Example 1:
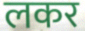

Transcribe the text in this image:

लकर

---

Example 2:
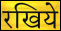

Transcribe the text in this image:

रखिये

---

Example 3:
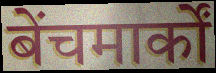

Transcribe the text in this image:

बेंचमार्कों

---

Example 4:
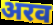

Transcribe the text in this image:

अरव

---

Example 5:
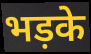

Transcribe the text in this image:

भड़के